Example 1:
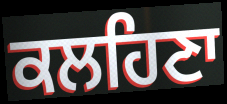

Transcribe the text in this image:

ਕਲਹਿਣਾ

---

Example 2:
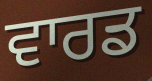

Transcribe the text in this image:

ਵਾਰਡ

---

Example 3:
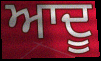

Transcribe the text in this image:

ਆਦੂ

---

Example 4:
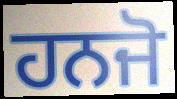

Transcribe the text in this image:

ਹਨਜੋ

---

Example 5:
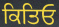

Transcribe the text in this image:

ਕਿਤਿਓ